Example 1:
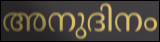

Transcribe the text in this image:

അനുദിനം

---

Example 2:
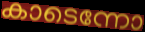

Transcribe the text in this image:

കാടെന്നോ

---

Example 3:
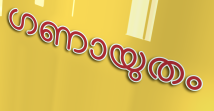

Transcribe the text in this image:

ഗണായുതം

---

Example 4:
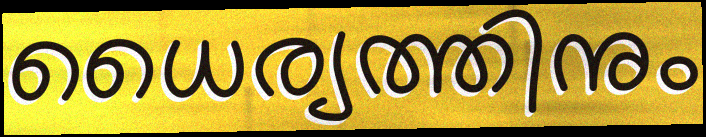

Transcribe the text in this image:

ധൈര്യത്തിനും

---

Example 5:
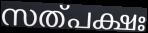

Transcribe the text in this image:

സത്പക്ഷഃ